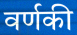
वर्णकी